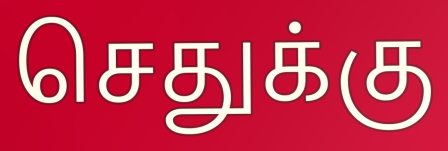
செதுக்கு